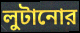
লুটানোর